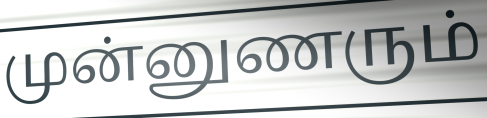
முன்னுணரும்